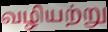
வழியற்று